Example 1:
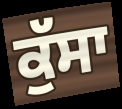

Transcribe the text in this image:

ਕੁੱਸਾ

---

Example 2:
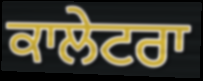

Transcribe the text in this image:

ਕਾਲੇਟਰਾ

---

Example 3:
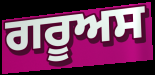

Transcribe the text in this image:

ਗਰੂਅਸ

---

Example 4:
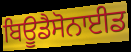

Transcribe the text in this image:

ਬਿਊਡੈਸੋਨਾਈਡ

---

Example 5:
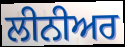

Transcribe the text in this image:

ਲੀਨੀਅਰ